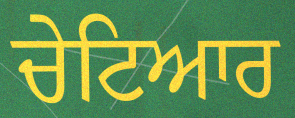
ਚੇਟਿਆਰ